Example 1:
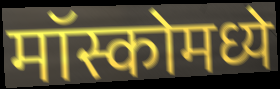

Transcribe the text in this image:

मॉस्कोमध्ये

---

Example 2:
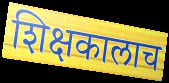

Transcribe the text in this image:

शिक्षकालाच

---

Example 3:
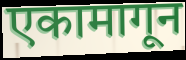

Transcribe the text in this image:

एकामागून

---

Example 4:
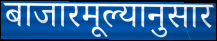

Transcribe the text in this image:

बाजारमूल्यानुसार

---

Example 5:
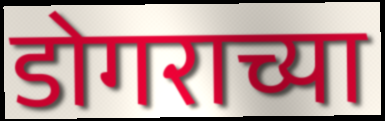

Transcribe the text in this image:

डोगराच्या